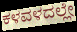
ಕಳವಳದಲ್ಲೇ